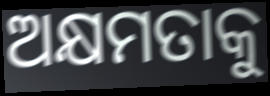
ଅକ୍ଷମତାକୁ